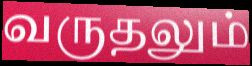
வருதலும்